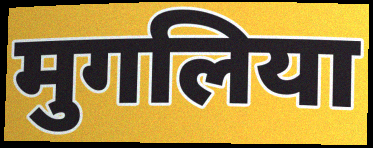
मुगलिया